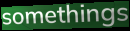
somethings